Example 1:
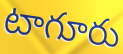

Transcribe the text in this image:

టాగూరు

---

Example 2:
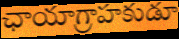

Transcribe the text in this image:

ఛాయాగ్రాహకుడూ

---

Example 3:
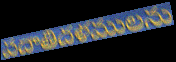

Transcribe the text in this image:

పదాతిదళములను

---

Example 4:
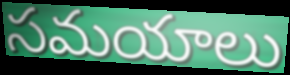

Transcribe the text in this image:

సమయాలు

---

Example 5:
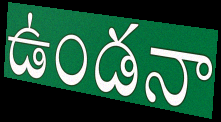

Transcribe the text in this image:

ఉండనా